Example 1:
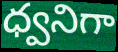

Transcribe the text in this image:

ధ్వనిగా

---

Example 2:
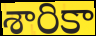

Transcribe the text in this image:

శారికా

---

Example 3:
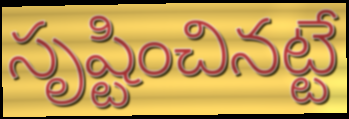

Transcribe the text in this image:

సృష్టించినట్టే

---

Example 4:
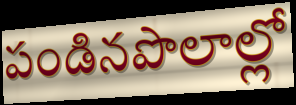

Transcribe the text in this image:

పండినపొలాల్లో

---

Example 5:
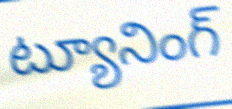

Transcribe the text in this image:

ట్యూనింగ్